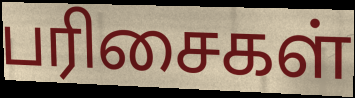
பரிசைகள்